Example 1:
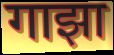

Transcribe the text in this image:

गाझा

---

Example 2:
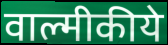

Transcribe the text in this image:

वाल्मीकीये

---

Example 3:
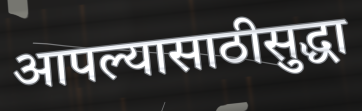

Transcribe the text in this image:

आपल्यासाठीसुद्धा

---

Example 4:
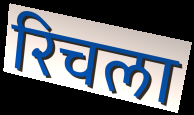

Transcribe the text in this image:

रिचला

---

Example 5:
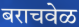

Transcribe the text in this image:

बराचवेळ